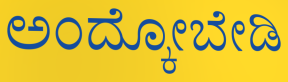
ಅಂದ್ಕೋಬೇಡಿ